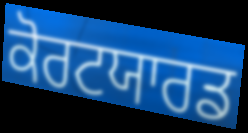
ਕੋਰਟਯਾਰਡ